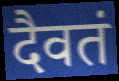
दैवतं